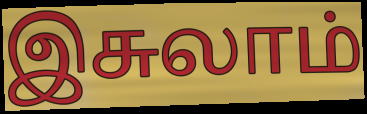
இசுலாம்